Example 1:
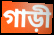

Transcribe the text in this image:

গাড়ী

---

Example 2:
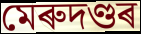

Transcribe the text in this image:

মেৰুদণ্ডৰ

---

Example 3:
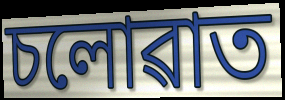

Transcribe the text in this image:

চলোৱাত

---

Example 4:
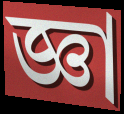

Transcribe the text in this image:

জ্ঞা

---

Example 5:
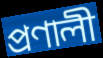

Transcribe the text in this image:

প্ৰণালী